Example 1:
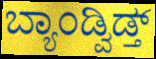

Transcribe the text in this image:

ಬ್ಯಾಂಡ್ವಿಡ್ತ್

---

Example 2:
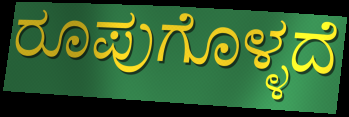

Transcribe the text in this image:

ರೂಪುಗೊಳ್ಳದೆ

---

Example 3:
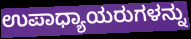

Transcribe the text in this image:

ಉಪಾಧ್ಯಾಯರುಗಳನ್ನು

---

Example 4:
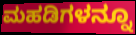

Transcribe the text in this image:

ಮಹಡಿಗಳನ್ನೂ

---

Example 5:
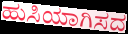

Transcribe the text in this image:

ಹುಸಿಯಾಗಿಸದ